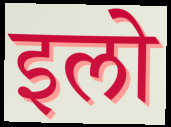
इलो